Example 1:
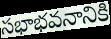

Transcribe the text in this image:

సభాభవనానికి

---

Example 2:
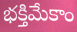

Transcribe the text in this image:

భక్తిమేకాం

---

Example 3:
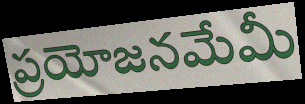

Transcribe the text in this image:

ప్రయోజనమేమీ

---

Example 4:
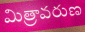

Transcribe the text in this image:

మిత్రావరుణ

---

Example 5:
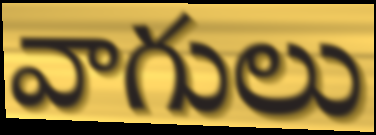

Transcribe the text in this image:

వాగులు